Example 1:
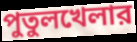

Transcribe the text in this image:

পুতুলখেলার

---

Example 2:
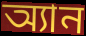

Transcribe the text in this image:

অ্যান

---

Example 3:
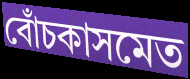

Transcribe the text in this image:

বোঁচকাসমেত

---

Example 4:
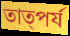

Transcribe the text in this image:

তাত্পর্য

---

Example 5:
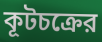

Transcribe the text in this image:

কূটচক্রের